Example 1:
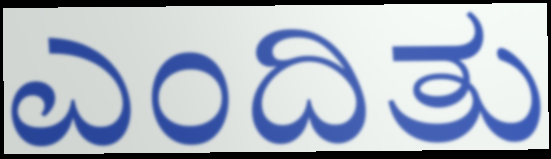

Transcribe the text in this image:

ಎಂದಿತು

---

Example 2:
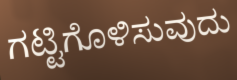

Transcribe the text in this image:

ಗಟ್ಟಿಗೊಳಿಸುವುದು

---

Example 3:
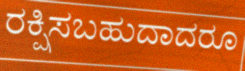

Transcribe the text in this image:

ರಕ್ಷಿಸಬಹುದಾದರೂ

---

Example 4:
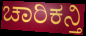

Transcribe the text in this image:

ಚಾರಿಕನ್ತಿ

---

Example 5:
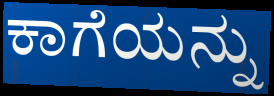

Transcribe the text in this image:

ಕಾಗೆಯನ್ನು